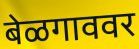
बेळगाववर